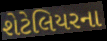
શેટેલિયરના